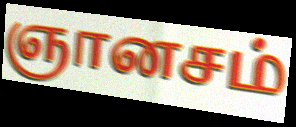
ஞானசம்